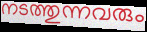
നടത്തുന്നവരും